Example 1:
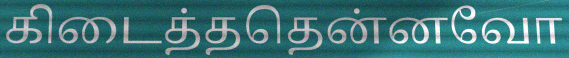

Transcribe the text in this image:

கிடைத்ததென்னவோ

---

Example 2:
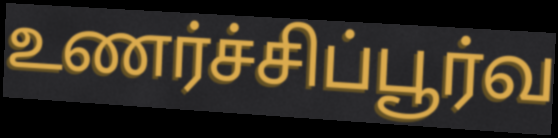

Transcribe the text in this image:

உணர்ச்சிப்பூர்வ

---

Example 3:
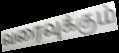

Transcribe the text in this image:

வரைவுக்கும்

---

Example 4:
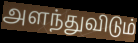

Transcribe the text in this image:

அளந்துவிடும்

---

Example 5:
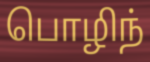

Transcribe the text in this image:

பொழிந்